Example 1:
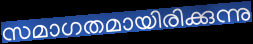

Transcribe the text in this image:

സമാഗതമായിരിക്കുന്നു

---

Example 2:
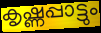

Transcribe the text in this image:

കൃഷ്ണപ്പാട്ടും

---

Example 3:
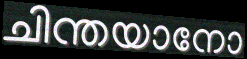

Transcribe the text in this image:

ചിന്തയാനോ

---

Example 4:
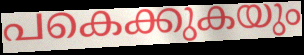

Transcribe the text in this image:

പകെക്കുകയും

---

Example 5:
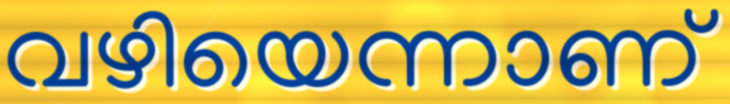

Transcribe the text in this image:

വഴിയെന്നാണ്